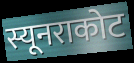
स्यूनराकोट